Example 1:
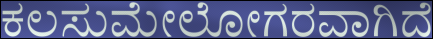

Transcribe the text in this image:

ಕಲಸುಮೇಲೋಗರವಾಗಿದೆ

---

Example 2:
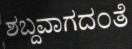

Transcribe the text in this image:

ಶಬ್ದವಾಗದಂತೆ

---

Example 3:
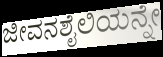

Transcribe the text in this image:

ಜೀವನಶೈಲಿಯನ್ನೇ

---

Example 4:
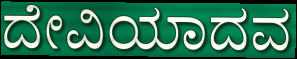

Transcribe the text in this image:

ದೇವಿಯಾದವ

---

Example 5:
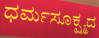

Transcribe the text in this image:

ಧರ್ಮಸೂಕ್ಷ್ಮದ